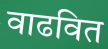
वाढवित